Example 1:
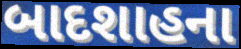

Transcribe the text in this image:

બાદશાહના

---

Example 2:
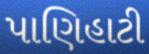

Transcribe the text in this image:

પાણિહાટી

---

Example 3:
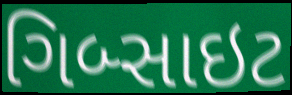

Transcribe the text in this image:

ગિબ્સાઇટ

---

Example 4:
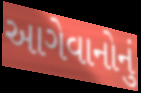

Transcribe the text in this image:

આગેવાનોનું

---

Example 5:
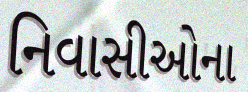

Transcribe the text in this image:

નિવાસીઓના